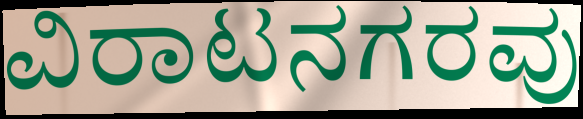
ವಿರಾಟನಗರವು